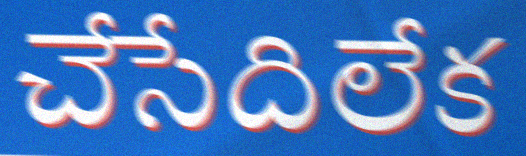
చేసేదిలేక